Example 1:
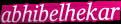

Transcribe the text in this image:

abhibelhekar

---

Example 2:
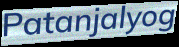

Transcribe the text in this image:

Patanjalyog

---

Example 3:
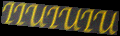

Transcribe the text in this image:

IIUIUIU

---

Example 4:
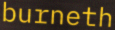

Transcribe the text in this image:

burneth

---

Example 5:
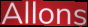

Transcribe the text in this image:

Allons